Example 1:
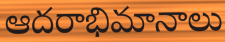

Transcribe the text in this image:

ఆదరాభిమానాలు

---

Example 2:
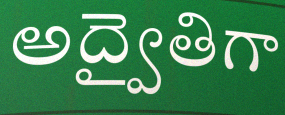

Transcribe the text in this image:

అద్వైతిగా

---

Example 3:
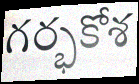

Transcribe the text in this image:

గర్భకోశ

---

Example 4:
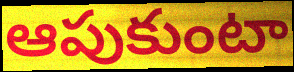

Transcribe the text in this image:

ఆపుకుంటా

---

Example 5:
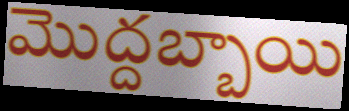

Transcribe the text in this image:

మొద్దబ్బాయి